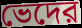
ভেদের